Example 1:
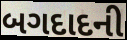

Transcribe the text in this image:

બગદાદની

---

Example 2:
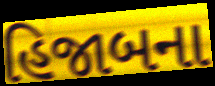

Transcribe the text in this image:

હિજાબના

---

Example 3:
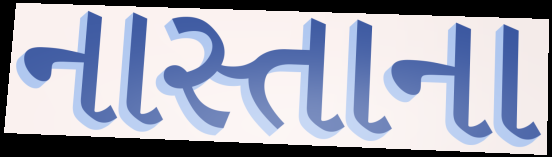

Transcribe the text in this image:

નાસ્તાના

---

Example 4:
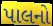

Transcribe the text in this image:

પાલનો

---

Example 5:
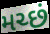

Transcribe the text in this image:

મચ્છં